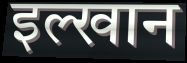
इल्खान